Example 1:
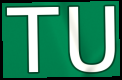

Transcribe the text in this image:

TU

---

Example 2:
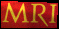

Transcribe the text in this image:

MRI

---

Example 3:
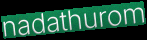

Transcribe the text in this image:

nadathurom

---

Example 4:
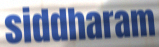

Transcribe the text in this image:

siddharam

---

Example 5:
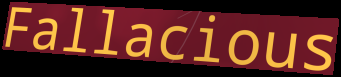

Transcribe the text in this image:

Fallacious